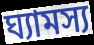
ঘ্যামস্য